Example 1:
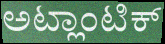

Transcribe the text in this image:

ಅಟ್ಲಾಂಟಿಕ್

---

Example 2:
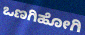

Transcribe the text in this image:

ಒಣಗಿಹೋಗಿ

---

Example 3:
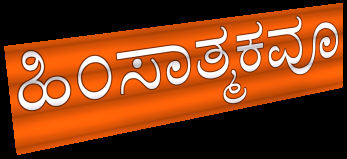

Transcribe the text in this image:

ಹಿಂಸಾತ್ಮಕವೂ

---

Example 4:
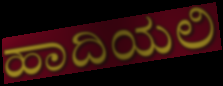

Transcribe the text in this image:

ಹಾದಿಯಲಿ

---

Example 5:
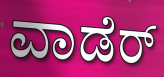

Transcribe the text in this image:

ವಾಡೆರ್